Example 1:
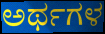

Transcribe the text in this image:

ಅರ್ಥಗಳ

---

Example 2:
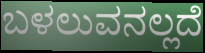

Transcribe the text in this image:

ಬಳಲುವನಲ್ಲದೆ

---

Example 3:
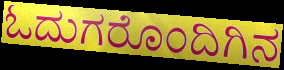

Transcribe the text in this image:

ಓದುಗರೊಂದಿಗಿನ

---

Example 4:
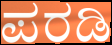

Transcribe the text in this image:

ಪರಡಿ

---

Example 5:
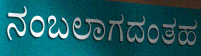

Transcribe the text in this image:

ನಂಬಲಾಗದಂತಹ